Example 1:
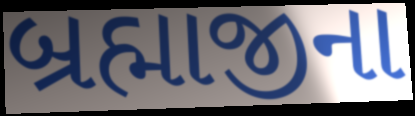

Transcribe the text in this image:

બ્રહ્માજીના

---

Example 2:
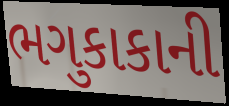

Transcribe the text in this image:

ભગુકાકાની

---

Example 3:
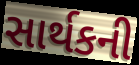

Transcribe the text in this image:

સાર્થકની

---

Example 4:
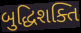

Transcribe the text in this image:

બુદ્ધિશક્તિ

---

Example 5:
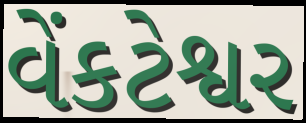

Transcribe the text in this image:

વેંકટેશ્વર